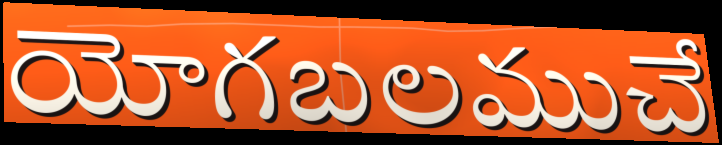
యోగబలముచే